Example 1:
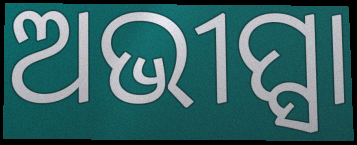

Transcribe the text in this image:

ଅଭୀପ୍ସା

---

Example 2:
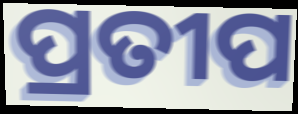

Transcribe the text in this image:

ପ୍ରତୀପ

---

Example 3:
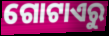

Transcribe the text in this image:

ଗୋଟାଏରୁ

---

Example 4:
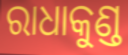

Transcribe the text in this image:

ରାଧାକୁଣ୍ଡ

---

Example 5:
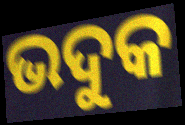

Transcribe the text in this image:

ଭଦୁକ